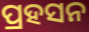
ପ୍ରହସନ